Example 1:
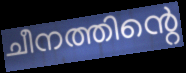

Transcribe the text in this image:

ചീനത്തിന്റെ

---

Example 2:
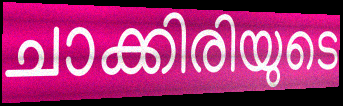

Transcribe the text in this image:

ചാക്കിരിയുടെ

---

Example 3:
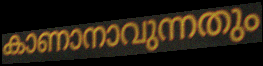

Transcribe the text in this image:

കാണാനാവുന്നതും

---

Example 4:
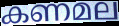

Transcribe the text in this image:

കണമല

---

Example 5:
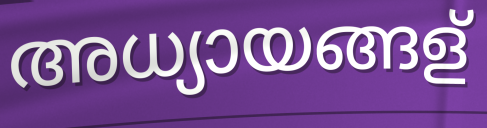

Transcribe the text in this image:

അധ്യായങ്ങള്